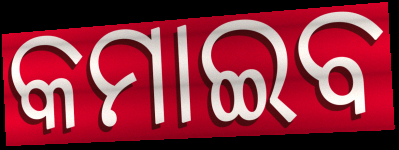
କମାଇବ